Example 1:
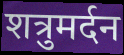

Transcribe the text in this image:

शत्रुमर्दन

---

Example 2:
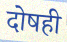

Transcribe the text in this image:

दोषही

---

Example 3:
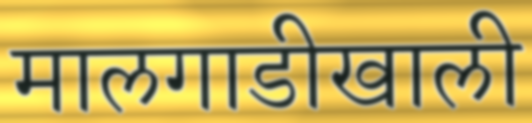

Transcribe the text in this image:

मालगाडीखाली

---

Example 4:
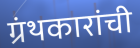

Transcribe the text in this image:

ग्रंथकारांची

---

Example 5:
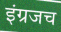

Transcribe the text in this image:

इंग्रजच